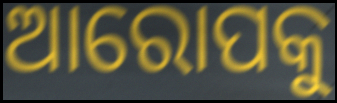
ଆରୋପକୁ